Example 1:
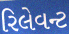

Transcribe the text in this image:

રિલેવન્ટ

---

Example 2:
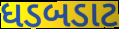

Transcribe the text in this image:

ધડબડાટ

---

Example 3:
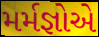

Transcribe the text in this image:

મર્મજ્ઞોએ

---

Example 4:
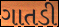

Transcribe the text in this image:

ગાતડી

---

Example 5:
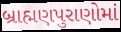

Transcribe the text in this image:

બ્રાહ્મણપુરાણોમાં